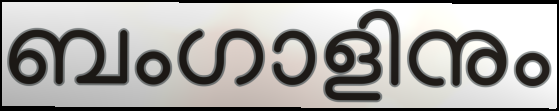
ബംഗാളിനും